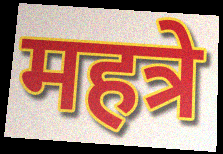
महत्रे